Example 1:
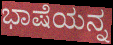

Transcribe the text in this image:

ಭಾಷೆಯನ್ನ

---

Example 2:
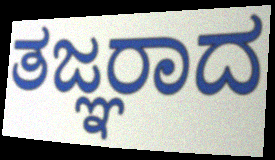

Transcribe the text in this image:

ತಜ್ಞರಾದ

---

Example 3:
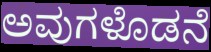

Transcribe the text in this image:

ಅವುಗಳೊಡನೆ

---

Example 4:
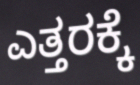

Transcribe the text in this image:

ಎತ್ತರಕ್ಕೆ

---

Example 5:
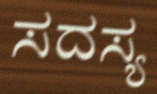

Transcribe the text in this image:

ಸದಸ್ಯ